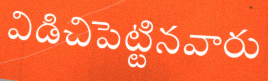
విడిచిపెట్టినవారు